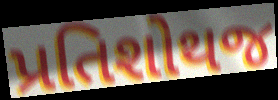
પ્રતિશોથજ